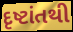
દૃષ્ટાંતથી